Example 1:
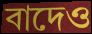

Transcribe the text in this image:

বাদেও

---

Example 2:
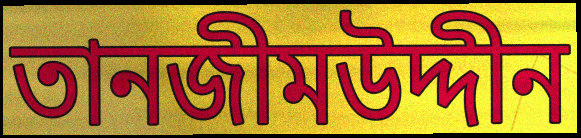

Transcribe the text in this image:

তানজীমউদ্দীন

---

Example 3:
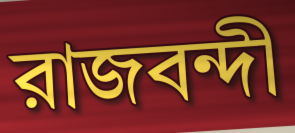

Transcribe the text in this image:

রাজবন্দী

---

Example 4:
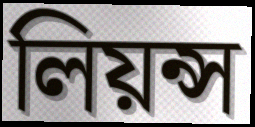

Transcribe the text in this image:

লিয়ন্স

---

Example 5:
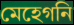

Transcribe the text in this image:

মেহেগনি